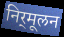
निर्मूलन